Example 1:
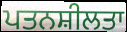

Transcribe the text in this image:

ਪਤਨਸ਼ੀਲਤਾ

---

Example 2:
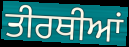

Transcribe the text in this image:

ਤੀਰਥੀਆਂ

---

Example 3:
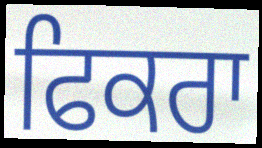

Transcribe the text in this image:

ਫਿਕਰਾ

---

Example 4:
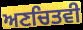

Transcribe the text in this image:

ਅਣਚਿਤਵੀ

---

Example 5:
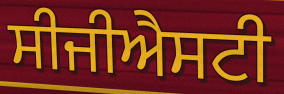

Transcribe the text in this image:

ਸੀਜੀਐਸਟੀ